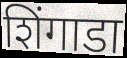
शिंगाडा